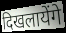
दिखलायेंगे